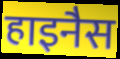
हाइनैस